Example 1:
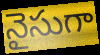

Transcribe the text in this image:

నైసుగా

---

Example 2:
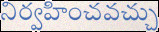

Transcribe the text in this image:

నిర్వహించవచ్చు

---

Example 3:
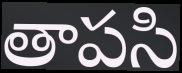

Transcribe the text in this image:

తాపసి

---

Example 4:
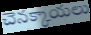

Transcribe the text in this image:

చెనక్కాయలు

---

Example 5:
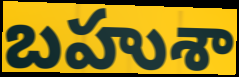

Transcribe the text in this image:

బహుశా